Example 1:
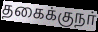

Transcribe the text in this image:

தகைக்குநர்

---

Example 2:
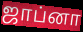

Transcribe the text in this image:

ஜாப்னா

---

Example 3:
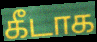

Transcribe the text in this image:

கீடாக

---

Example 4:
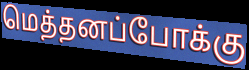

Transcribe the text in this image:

மெத்தனப்போக்கு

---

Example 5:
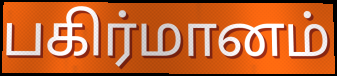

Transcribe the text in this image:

பகிர்மானம்